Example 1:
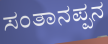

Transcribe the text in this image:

ಸಂತಾನಪ್ಪನ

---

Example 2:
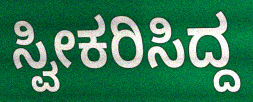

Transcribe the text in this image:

ಸ್ವೀಕರಿಸಿದ್ದ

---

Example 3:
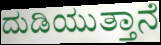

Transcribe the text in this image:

ದುಡಿಯುತ್ತಾನೆ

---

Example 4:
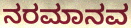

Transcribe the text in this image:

ನರಮಾನವ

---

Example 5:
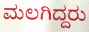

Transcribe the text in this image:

ಮಲಗಿದ್ದರು